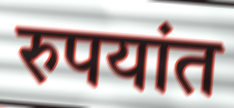
रुपयांत